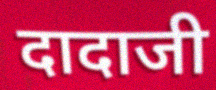
दादाजी